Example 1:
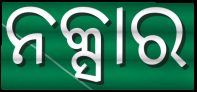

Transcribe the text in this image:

ନକ୍ସାର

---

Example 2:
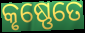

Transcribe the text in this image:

କୃଷ୍ଣେତେ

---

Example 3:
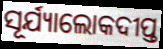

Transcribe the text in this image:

ସୂର୍ଯ୍ୟାଲୋକଦୀପ୍ତ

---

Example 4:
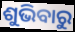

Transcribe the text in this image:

ଶୁଭିବାରୁ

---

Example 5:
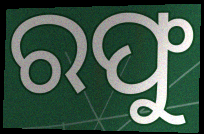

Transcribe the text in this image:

ରଫୁ